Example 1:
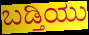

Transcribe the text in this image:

ಬಡ್ತಿಯು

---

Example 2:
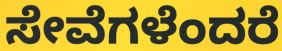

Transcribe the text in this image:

ಸೇವೆಗಳೆಂದರೆ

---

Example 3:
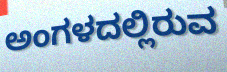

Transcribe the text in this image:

ಅಂಗಳದಲ್ಲಿರುವ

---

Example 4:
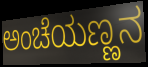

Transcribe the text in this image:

ಅಂಚೆಯಣ್ಣನ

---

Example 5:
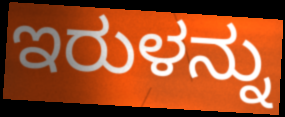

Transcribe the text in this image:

ಇರುಳನ್ನು